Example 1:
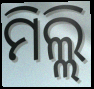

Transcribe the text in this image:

ମିଲ୍ଲି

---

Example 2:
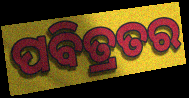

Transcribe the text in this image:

ପବିତ୍ରତର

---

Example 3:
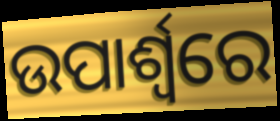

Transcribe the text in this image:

ଉପାର୍ଶ୍ଵରେ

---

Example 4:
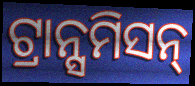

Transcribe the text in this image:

ଟ୍ରାନ୍ସମିସନ୍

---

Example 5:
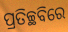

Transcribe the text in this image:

ପ୍ରତିଚ୍ଛବିରେ